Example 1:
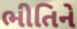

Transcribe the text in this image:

ભીતિને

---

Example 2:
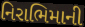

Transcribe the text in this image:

નિરાભિમાની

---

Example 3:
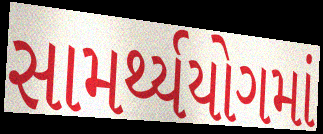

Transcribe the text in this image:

સામર્થ્યયોગમાં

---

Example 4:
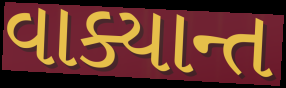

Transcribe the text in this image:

વાક્યાન્ત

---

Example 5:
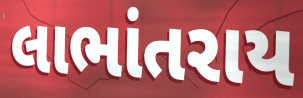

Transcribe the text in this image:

લાભાંતરાય